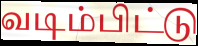
வடிம்பிட்டு